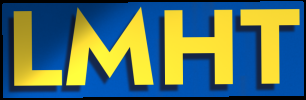
LMHT